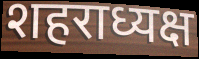
शहराध्यक्ष